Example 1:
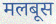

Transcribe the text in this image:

मलबूस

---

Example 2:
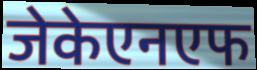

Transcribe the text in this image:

जेकेएनएफ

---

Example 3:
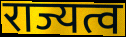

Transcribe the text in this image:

राज्यत्व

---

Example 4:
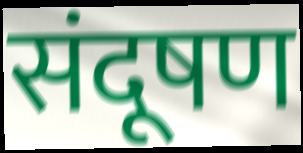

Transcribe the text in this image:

संदूषण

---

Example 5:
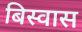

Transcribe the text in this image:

बिस्वास